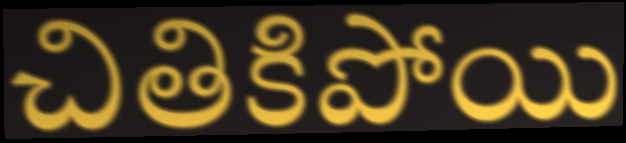
చితికిపోయి